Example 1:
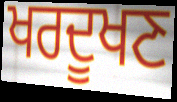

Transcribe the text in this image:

ਖਰਦੂਖਣ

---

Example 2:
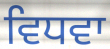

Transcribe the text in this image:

ਵਿਧਵਾ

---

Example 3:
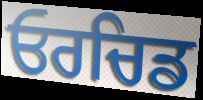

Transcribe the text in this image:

ਓਰਚਿਡ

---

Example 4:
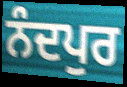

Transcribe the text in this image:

ਨੰਦਪੁਰ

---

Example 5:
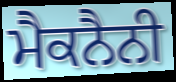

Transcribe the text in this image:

ਮੈਕਨੈਨੀ